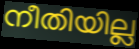
നീതിയില്ല